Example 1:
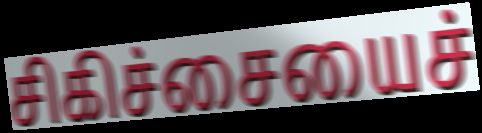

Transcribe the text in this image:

சிகிச்சையைச்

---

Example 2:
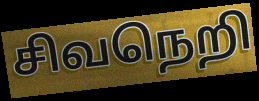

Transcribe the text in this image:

சிவநெறி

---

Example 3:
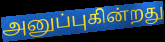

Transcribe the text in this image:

அனுப்புகின்றது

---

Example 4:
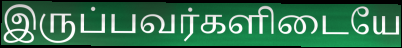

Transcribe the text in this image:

இருப்பவர்களிடையே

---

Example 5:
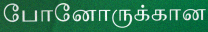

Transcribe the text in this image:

போனோருக்கான